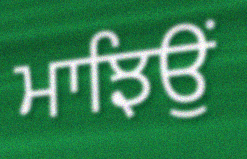
ਮਾਝਿਉਂ